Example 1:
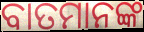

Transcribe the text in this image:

ବାତମାନଙ୍କ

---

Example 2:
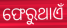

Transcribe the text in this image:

ଫେରୁଥାଏଁ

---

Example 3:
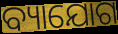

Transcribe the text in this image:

ବ୍ୟାଯୋଗ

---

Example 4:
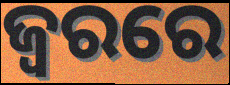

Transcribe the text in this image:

ଜ୍ବରରେ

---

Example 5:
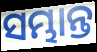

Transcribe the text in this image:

ସମ୍ଭାନ୍ତ